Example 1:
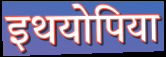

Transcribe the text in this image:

इथयोपिया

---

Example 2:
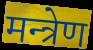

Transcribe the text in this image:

मन्त्रेण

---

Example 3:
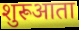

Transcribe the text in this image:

शुरूआता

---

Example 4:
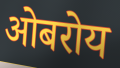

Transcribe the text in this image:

ओबरोय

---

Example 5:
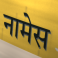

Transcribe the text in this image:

नामेस